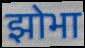
झोभा